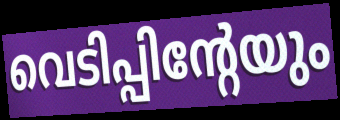
വെടിപ്പിന്റേയും